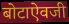
बोटाऐवजी